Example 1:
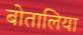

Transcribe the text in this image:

बोतालिया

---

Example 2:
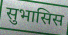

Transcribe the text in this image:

सुभासिस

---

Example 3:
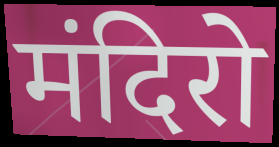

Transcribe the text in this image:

मंदिरो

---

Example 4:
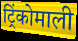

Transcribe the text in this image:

ट्रिंकोमाली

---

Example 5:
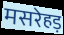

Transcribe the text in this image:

मसरेहड़